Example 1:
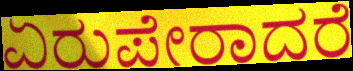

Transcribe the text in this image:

ಏರುಪೇರಾದರೆ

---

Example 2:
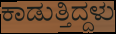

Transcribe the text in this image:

ಕಾಡುತ್ತಿದ್ದಳು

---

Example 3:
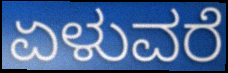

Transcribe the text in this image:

ಏಳುವರೆ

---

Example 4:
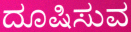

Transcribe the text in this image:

ದೂಷಿಸುವ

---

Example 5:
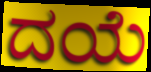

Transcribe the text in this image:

ದಯೆ